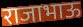
राजाभाऊ